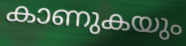
കാണുകയും